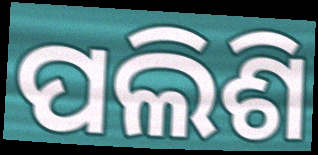
ପଲିଶି